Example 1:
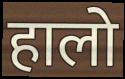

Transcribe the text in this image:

हालो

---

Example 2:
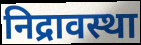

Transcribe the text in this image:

निद्रावस्था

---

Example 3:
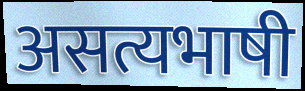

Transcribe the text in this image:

असत्यभाषी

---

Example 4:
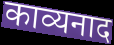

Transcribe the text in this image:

काव्यनाद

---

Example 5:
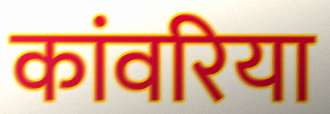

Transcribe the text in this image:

कांवरिया